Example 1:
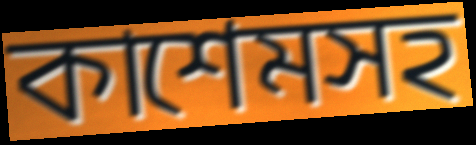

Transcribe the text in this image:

কাশেমসহ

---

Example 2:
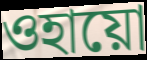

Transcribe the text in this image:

ওহায়ো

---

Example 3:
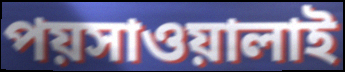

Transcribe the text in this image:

পয়সাওয়ালাই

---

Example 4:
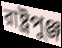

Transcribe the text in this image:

রাষ্ট্রপুঞ্জ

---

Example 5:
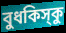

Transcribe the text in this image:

বুধকিস্‌কু